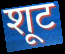
शूट